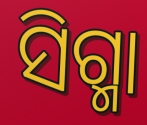
ସିଗ୍ମା